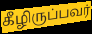
கீழிருப்பவர்